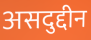
असदुद्दीन